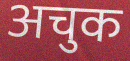
अचुक